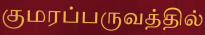
குமரப்பருவத்தில்